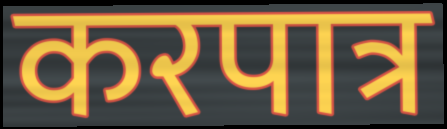
करपात्र